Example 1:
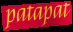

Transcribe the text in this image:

patapat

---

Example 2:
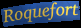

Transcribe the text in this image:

Roquefort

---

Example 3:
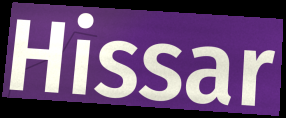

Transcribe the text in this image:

Hissar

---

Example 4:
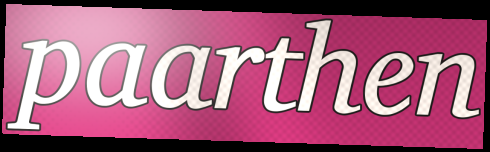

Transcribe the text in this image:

paarthen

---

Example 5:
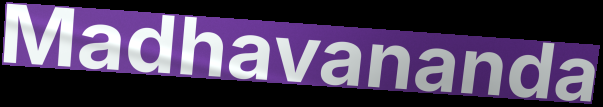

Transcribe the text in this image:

Madhavananda